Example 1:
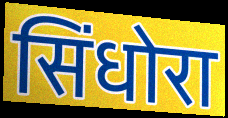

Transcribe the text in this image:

सिंधोरा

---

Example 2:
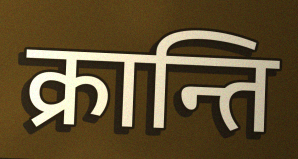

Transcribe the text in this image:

क्रान्ति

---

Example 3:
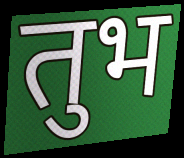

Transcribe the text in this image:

तुभ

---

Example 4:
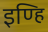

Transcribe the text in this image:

इण्हि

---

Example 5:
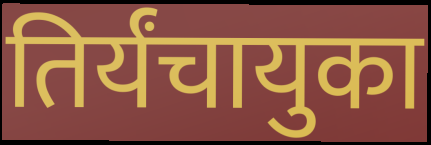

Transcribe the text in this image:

तिर्यंचायुका